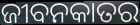
ଜୀବନକାତର